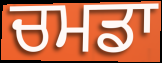
ਚਮਡਾ